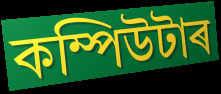
কম্পিউটাৰ